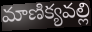
మాణిక్యవల్లి